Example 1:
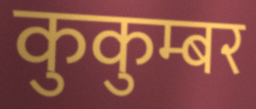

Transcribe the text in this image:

कुकुम्बर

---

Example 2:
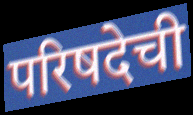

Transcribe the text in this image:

परिषदेची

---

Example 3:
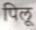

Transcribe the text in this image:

पिलू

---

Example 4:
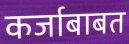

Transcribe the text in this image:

कर्जाबाबत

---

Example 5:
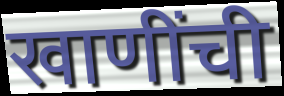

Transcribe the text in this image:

खाणींची